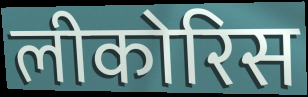
लीकोरिस